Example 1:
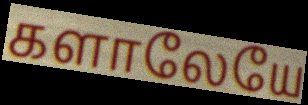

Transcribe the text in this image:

களாலேயே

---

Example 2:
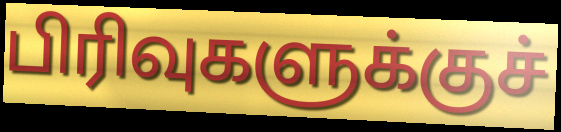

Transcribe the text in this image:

பிரிவுகளுக்குச்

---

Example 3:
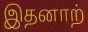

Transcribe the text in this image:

இதனாற்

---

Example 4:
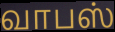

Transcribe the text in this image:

வாபஸ்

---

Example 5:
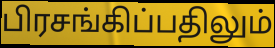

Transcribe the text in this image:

பிரசங்கிப்பதிலும்